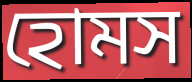
হোমস